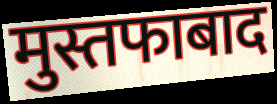
मुस्तफाबाद